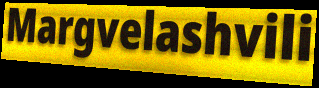
Margvelashvili